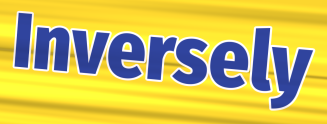
Inversely